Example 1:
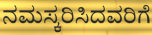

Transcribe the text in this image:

ನಮಸ್ಕರಿಸಿದವರಿಗೆ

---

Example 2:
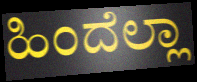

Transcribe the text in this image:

ಹಿಂದೆಲ್ಲಾ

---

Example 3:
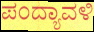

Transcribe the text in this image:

ಪಂದ್ಯಾವಳಿ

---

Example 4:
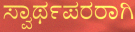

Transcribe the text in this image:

ಸ್ವಾರ್ಥಪರರಾಗಿ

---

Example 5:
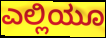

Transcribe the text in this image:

ಎಲ್ಲಿಯೂ